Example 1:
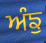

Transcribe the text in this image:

ਅੰਙੁ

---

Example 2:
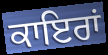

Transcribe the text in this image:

ਕਾਇਰਾਂ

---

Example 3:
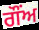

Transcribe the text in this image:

ਗੌਂਅ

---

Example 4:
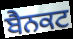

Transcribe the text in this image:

ਬੈਨਕਟ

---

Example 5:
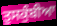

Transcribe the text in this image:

ਤੁਸਕੁੰਬੀਆ